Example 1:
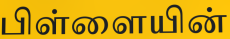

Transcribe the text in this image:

பிள்ளையின்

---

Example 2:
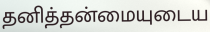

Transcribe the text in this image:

தனித்தன்மையுடைய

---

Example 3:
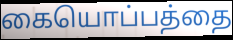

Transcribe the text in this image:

கையொப்பத்தை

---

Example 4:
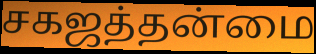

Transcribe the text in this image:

சகஜத்தன்மை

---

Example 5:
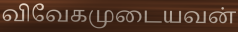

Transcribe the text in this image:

விவேகமுடையவன்